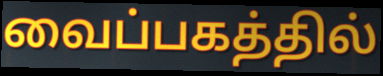
வைப்பகத்தில்